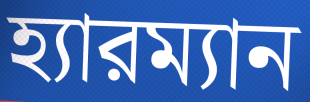
হ্যারম্যান